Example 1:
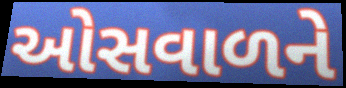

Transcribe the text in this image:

ઓસવાળને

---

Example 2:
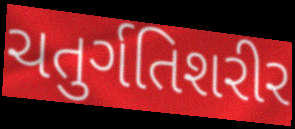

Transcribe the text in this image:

ચતુર્ગતિશરીર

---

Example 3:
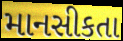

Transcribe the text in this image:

માનસીકતા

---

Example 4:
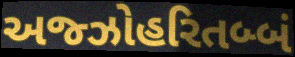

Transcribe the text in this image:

અજ્ઝોહરિતબ્બં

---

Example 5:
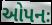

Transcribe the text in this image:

ઓપનઃ